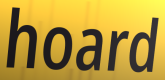
hoard